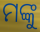
ମଙ୍କୁ